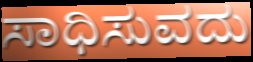
ಸಾಧಿಸುವದು